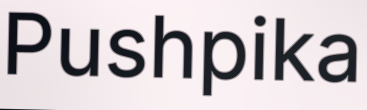
Pushpika